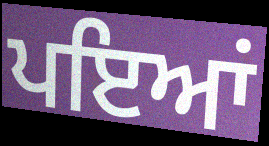
ਪਇਆਂ